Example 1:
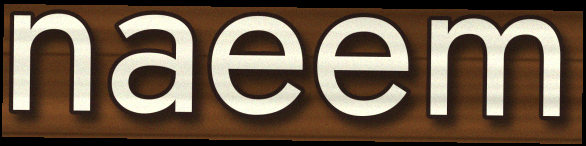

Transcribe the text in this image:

naeem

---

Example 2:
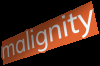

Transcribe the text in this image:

malignity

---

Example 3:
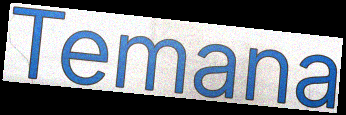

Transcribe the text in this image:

Temana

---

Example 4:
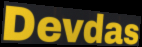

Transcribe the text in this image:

Devdas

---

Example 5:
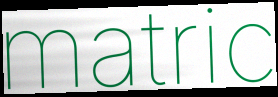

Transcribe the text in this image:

matric